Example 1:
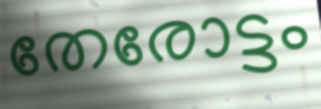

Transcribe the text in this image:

തേരോട്ടം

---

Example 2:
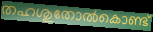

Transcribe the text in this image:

തഹശുതോൽകൊണ്ട്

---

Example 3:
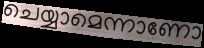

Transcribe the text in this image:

ചെയ്യാമെന്നാണോ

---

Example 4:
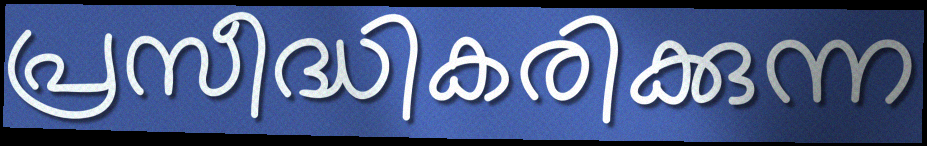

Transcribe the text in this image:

പ്രസീദ്ധികരിക്കുന്ന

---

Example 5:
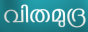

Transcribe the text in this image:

വിതമുദ്ര